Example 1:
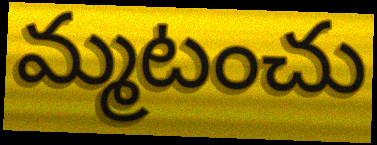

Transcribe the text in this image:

మ్మటంచు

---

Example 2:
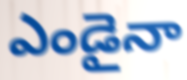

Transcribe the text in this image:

ఎండైనా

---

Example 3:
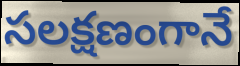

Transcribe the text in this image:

సలక్షణంగానే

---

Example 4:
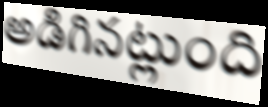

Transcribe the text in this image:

అడిగినట్లుంది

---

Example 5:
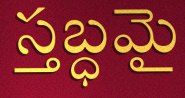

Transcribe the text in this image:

స్తబ్ధమై